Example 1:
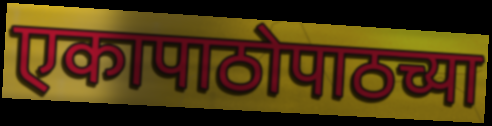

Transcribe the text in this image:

एकापाठोपाठच्या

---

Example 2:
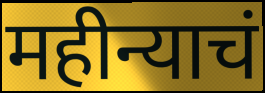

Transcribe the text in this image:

महीन्याचं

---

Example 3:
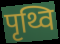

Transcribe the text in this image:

पृथ्वि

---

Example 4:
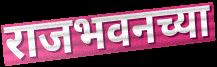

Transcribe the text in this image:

राजभवनच्या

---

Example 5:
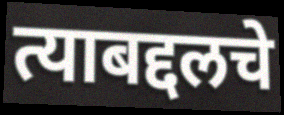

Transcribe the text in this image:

त्याबद्दलचे